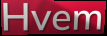
Hvem